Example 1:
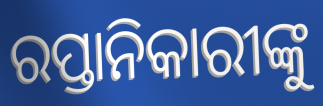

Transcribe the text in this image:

ରପ୍ତାନିକାରୀଙ୍କୁ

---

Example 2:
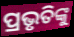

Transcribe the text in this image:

ପ୍ରଭୃତିଙ୍କୁ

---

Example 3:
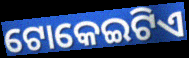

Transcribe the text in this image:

ଟୋକେଇଟିଏ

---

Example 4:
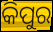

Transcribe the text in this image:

କିପୁର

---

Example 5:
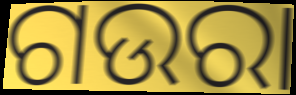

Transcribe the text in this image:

ଗଉରା